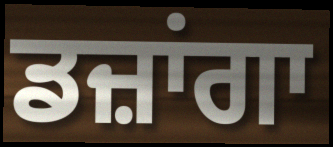
ਡਜ਼ਾਂਗਾ